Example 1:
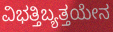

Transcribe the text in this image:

ವಿಭತ್ತಿಬ್ಯತ್ತಯೇನ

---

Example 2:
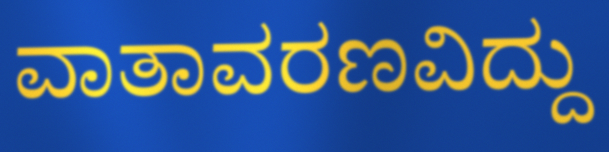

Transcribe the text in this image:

ವಾತಾವರಣವಿದ್ದು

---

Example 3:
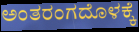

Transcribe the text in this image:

ಅಂತರಂಗದೊಳಕ್ಕೆ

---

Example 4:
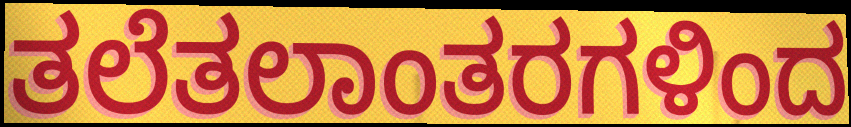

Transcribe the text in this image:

ತಲೆತಲಾಂತರಗಳಿಂದ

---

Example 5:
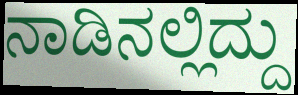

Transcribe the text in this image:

ನಾಡಿನಲ್ಲಿದ್ದು